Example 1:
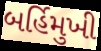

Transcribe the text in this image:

બર્હિમુખી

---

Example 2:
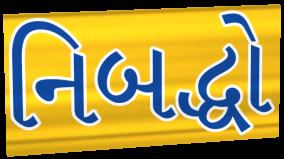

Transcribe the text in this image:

નિબદ્ધો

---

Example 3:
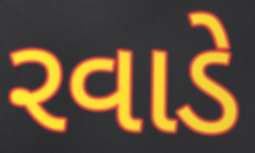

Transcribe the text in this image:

રવાડે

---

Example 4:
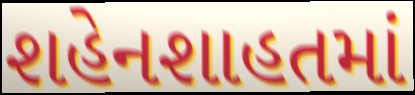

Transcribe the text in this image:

શહેનશાહતમાં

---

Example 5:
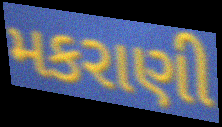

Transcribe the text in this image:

મકરાણી